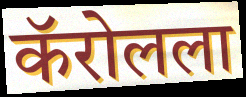
कॅरोलला